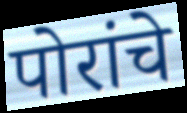
पोरांचे